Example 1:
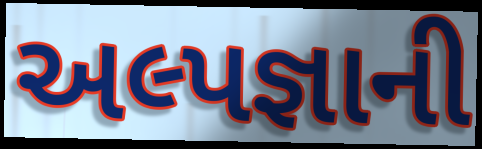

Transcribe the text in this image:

અલ્પજ્ઞાની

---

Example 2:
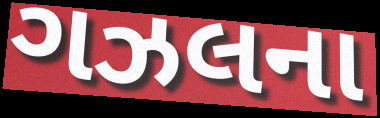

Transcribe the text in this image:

ગઝલના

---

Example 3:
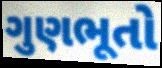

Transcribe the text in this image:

ગુણભૂતો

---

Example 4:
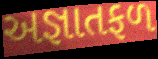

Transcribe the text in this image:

અજ્ઞાતફળ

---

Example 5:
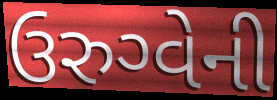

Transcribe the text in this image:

ઉરુગ્વેની